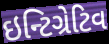
ઇન્ટિગ્રેટિવ